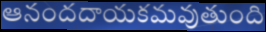
ఆనందదాయకమవుతుంది